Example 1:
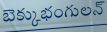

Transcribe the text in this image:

బెక్కుభంగులన్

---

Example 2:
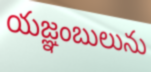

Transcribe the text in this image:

యజ్ఞంబులును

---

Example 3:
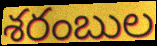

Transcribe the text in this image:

శరంబుల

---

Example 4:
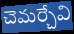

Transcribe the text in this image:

చెమర్చేవి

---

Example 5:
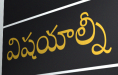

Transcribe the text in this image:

విషయాల్నీ